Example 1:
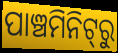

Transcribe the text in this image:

ପାଞ୍ଚମିନିଟ୍‌ରୁ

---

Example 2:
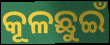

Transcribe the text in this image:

କୂଳଛୁଇଁ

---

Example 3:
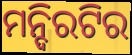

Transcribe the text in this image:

ମନ୍ଦିରଟିର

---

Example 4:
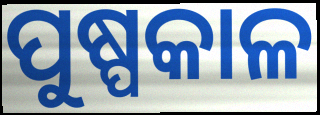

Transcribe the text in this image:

ପୁଷ୍ପକାଳ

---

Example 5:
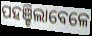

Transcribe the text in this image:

ପହଞ୍ଚିଲାବେଳେ